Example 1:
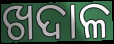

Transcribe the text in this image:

ଖଦାଳ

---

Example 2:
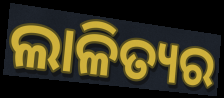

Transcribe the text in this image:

ଲାଳିତ୍ୟର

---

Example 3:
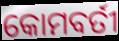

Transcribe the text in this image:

କୋମବର୍ତୀ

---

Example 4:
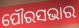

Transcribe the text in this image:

ପୌରସଭାର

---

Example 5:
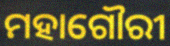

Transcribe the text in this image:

ମହାଗୌରୀ